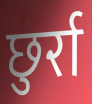
छुर्रा